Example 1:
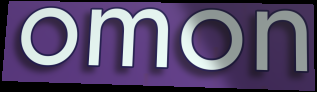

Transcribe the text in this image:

omon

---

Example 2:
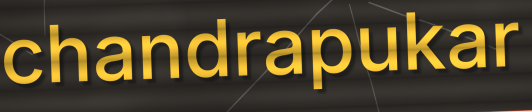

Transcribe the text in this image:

chandrapukar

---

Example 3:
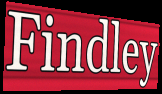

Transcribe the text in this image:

Findley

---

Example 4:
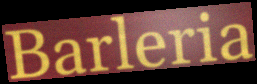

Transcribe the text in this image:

Barleria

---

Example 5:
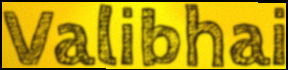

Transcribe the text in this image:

Valibhai